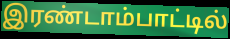
இரண்டாம்பாட்டில்